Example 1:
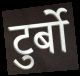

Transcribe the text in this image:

टुर्बो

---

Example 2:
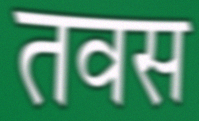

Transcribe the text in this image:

तवस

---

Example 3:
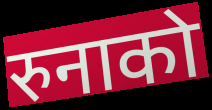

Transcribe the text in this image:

रुनाको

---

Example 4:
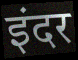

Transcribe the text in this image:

इंदर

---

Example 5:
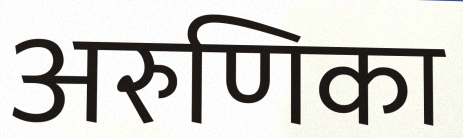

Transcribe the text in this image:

अरुणिका